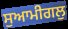
ਸੁਆਮੀਗਲੁ